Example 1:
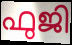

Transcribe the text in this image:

ഫുജി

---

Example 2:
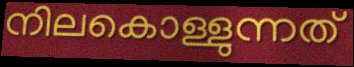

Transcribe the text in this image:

നിലകൊള്ളുന്നത്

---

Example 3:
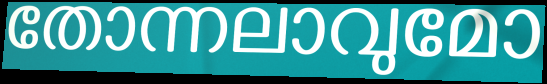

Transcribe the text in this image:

തോന്നലാവുമോ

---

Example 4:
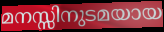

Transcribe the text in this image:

മനസ്സിനുടമയായ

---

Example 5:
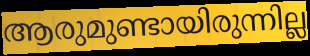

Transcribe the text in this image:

ആരുമുണ്ടായിരുന്നില്ല